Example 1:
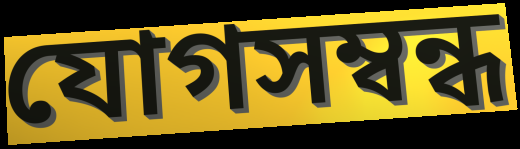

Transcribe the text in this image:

যোগসম্বন্ধ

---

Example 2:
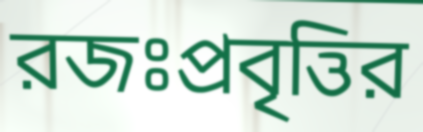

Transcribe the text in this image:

রজঃপ্রবৃত্তির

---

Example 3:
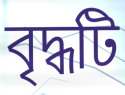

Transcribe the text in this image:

বৃদ্ধটি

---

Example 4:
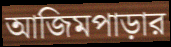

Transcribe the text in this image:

আজিমপাড়ার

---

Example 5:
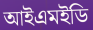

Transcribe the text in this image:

আইএমইডি